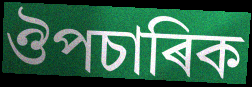
ঔপচাৰিক